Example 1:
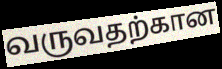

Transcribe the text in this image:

வருவதற்கான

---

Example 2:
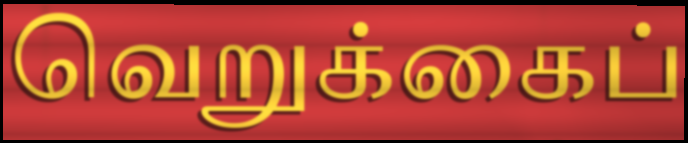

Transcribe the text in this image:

வெறுக்கைப்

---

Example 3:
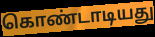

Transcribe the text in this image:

கொண்டாடியது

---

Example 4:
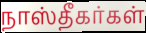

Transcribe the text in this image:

நாஸ்தீகர்கள்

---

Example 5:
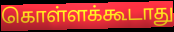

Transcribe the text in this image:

கொள்ளக்கூடாது